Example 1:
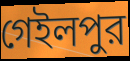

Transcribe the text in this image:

গেইলপুর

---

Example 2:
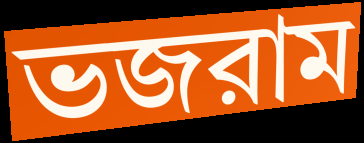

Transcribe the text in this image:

ভজরাম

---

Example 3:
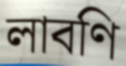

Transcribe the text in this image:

লাবণি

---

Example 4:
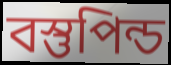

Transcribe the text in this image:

বস্তুপিন্ড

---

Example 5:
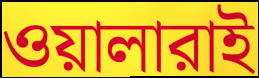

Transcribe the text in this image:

ওয়ালারাই